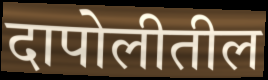
दापोलीतील